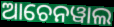
ଆଚେନୱାଲ